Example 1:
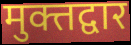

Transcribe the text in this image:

मुक्तद्वार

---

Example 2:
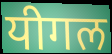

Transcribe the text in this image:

यीगल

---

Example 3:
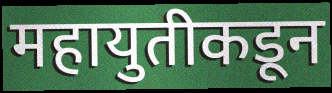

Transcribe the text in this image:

महायुतीकडून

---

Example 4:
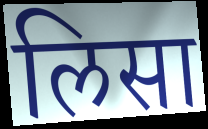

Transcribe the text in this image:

लिसा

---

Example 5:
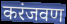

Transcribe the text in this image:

करंजवण